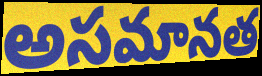
అసమానత